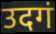
उदगं